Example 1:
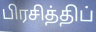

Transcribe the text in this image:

பிரசித்திப்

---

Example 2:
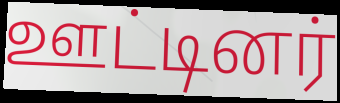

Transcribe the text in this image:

ஊட்டினர்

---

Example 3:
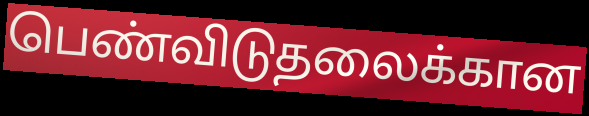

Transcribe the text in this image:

பெண்விடுதலைக்கான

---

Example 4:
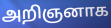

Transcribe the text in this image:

அறிஞனாக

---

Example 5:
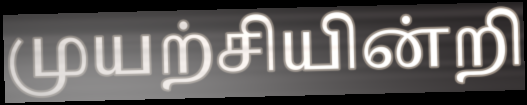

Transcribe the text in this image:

முயற்சியின்றி